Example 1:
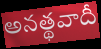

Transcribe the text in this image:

అనత్థవాదీ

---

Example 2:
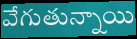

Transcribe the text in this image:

వేగుతున్నాయి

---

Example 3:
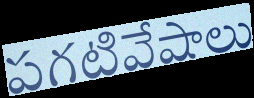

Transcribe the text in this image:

పగటివేషాలు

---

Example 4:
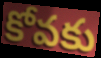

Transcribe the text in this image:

కోవకు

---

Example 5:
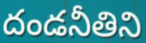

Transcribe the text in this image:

దండనీతిని